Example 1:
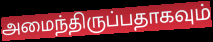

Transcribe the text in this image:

அமைந்திருப்பதாகவும்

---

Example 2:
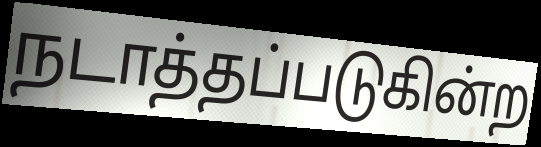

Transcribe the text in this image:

நடாத்தப்படுகின்ற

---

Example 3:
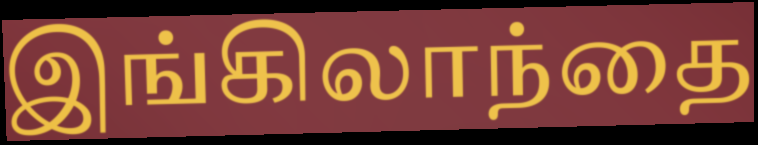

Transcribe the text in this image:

இங்கிலாந்தை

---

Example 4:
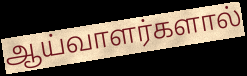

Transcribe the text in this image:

ஆய்வாளர்களால்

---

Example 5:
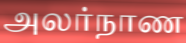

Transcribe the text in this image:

அலர்நாண